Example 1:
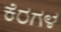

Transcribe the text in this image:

ಕೆರಗಳ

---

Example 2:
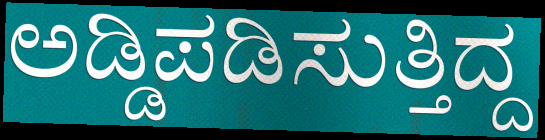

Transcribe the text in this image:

ಅಡ್ಡಿಪಡಿಸುತ್ತಿದ್ದ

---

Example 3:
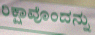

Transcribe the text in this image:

ರಿಕ್ಷಾವೊಂದನ್ನು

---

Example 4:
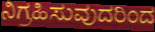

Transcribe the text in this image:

ನಿಗ್ರಹಿಸುವುದರಿಂದ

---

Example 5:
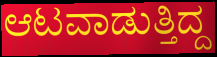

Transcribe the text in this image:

ಆಟವಾಡುತ್ತಿದ್ದ